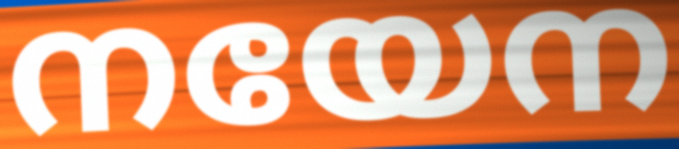
നയേന